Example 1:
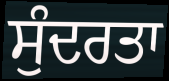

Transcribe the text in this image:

ਸੁੰਦਰਤਾ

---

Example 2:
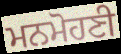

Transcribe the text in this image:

ਮਨਮੋਹਣੀ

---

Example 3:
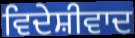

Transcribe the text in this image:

ਵਿਦੇਸ਼ੀਵਾਦ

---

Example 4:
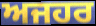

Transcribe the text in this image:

ਅਜਹਰ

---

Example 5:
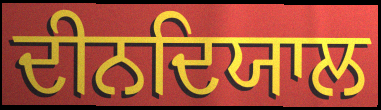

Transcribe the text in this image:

ਦੀਨਦਿਯਾਲ